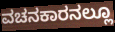
ವಚನಕಾರನಲ್ಲೂ